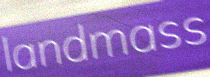
landmass